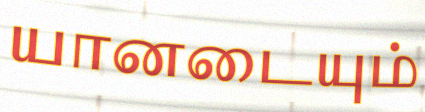
யானடையும்